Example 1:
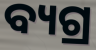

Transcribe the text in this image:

ବ୍ୟଗ୍ର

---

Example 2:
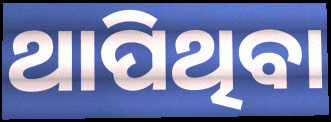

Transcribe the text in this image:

ଥାପିଥିବା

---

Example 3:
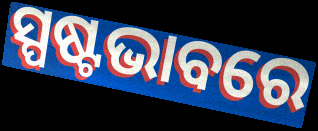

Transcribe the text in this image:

ସ୍ପଷ୍ଟଭାବରେ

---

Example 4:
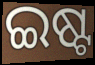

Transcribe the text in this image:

ଇଷ୍ଟ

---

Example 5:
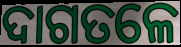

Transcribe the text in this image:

ଦାଗତଳେ